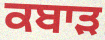
ਕਬਾਡ਼